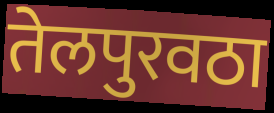
तेलपुरवठा